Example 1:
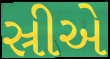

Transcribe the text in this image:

સ્રીએ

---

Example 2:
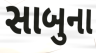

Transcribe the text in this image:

સાબુના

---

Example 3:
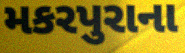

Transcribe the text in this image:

મકરપુરાના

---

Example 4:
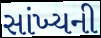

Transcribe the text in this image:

સાંખ્યની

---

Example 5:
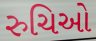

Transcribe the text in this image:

રુચિઓ